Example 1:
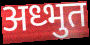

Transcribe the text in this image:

अध्भुत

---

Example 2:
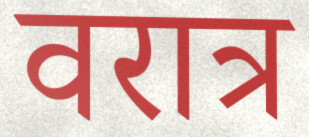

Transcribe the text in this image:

वरात्र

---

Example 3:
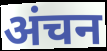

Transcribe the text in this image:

अंचन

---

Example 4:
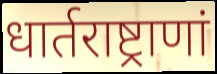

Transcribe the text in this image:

धार्तराष्ट्राणां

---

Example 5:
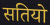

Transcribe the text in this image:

सतियो